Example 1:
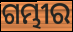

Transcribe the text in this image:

ଗମ୍ଭୀର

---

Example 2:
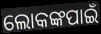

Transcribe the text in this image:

ଲୋକଙ୍କପାଇଁ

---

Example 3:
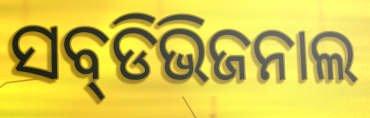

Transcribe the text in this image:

ସବ୍‌ଡିଭିଜନାଲ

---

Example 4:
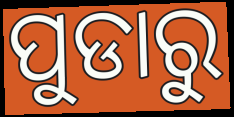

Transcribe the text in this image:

ପୁଡାରୁ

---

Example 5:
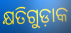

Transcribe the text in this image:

କ୍ଷତିଗୁଡ଼ାକ